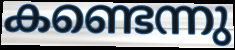
കണ്ടെന്നു